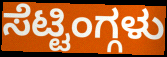
ಸೆಟ್ಟಿಂಗ್ಗಳು